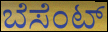
ಬೆಸೆಂಟ್